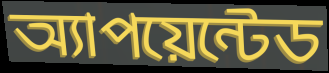
অ্যাপয়েন্টেড